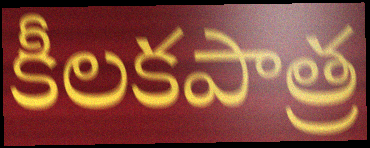
కీలకపాత్ర